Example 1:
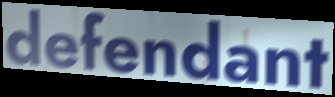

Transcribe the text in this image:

defendant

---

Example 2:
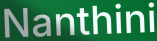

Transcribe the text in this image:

Nanthini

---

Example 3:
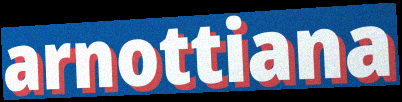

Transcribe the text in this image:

arnottiana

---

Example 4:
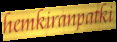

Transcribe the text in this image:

hemkiranpatki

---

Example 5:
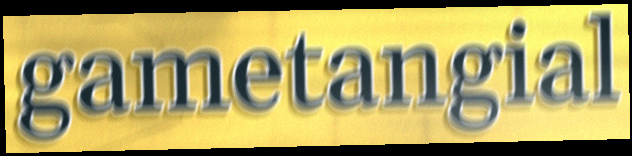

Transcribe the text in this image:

gametangial